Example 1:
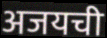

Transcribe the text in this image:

अजयची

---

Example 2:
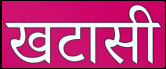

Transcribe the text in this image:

खटासी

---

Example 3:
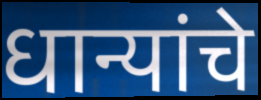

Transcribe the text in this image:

धान्यांचे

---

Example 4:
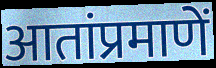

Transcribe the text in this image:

आतांप्रमाणें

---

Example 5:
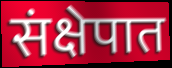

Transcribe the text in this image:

संक्षेपात